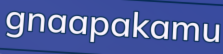
gnaapakamu